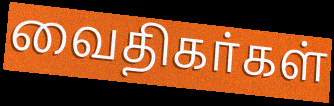
வைதிகர்கள்